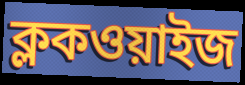
ক্লকওয়াইজ